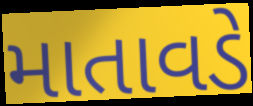
માતાવડે